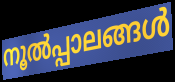
നൂൽപ്പാലങ്ങൾ